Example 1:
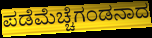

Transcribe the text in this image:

ಪಡೆಮೆಚ್ಚೆಗಂಡನಾದ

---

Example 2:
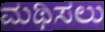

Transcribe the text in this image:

ಮಥಿಸಲು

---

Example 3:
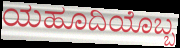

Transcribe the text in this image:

ಯಹೂದಿಯೊಬ್ಬ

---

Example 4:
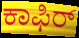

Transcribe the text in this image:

ಕಾಫಿರ್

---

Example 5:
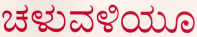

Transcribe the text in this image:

ಚಳುವಳಿಯೂ